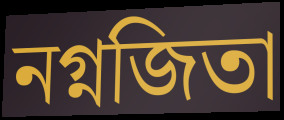
নগ্নজিতা